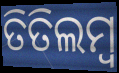
ତିତିଲମ୍ଵ